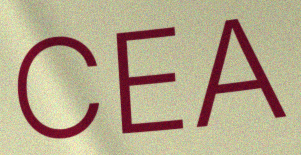
CEA